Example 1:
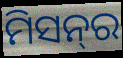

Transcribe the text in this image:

ମିସନ୍‍ର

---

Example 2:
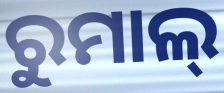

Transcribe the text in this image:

ରୁମାଲ୍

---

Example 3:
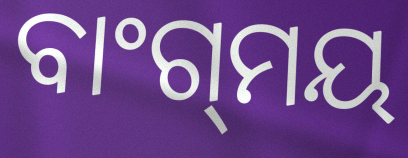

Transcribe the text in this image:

ବାଂଗ୍‌ମୟ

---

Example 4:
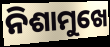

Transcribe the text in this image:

ନିଶାମୁଖେ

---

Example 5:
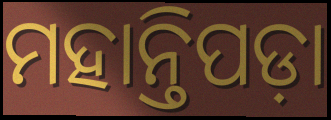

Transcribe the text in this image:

ମହାନ୍ତିପଡ଼ା